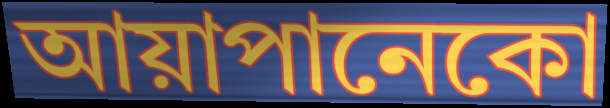
আয়াপানেকো